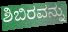
ಶಿಬಿರವನ್ನು